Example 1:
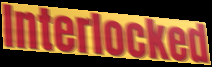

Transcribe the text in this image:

Interlocked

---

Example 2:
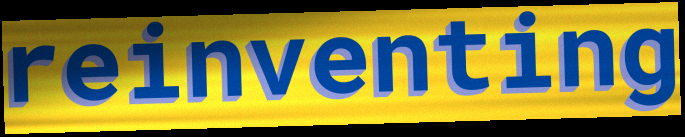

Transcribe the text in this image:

reinventing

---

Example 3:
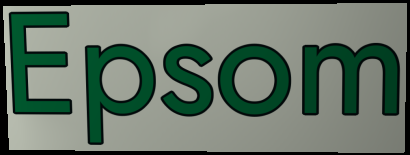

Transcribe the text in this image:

Epsom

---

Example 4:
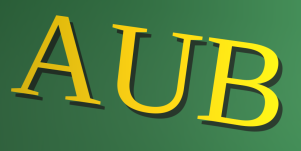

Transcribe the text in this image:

AUB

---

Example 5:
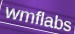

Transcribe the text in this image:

wmflabs